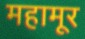
महामूर